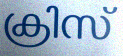
ക്രിസ്